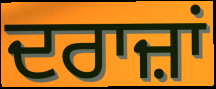
ਦਰਾਜ਼ਾਂ